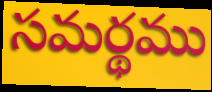
సమర్థము